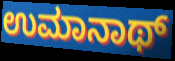
ಉಮಾನಾಥ್